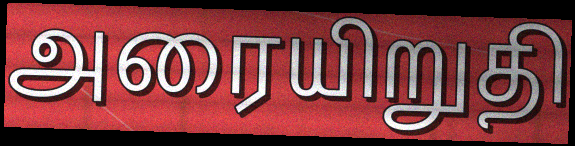
அரையிறுதி